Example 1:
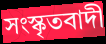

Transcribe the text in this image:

সংস্কৃতবাদী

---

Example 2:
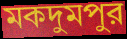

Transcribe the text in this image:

মকদুমপুর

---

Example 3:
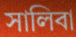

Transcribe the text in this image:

সালিবা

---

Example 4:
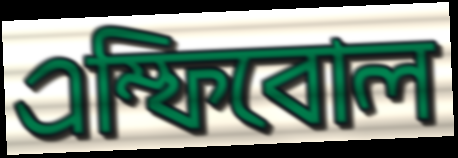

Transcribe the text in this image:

এম্ফিবোল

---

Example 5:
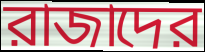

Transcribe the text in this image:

রাজাদের